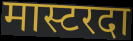
मास्टरदा